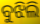
ବୁଝିଲି